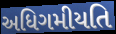
અધિગમીયતિ